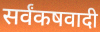
सर्वंकषवादी